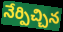
నేర్పిచ్చిన